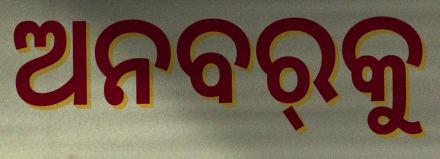
ଅନବର୍‌କୁ